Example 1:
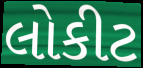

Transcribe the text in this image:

લોકીટ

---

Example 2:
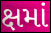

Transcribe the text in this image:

ક્ષમાં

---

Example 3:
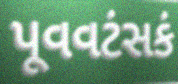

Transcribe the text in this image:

પૂવવટંસકં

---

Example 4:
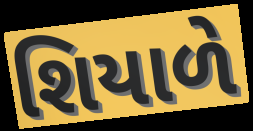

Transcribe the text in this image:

શિયાળે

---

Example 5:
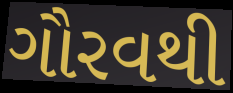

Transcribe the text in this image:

ગૌરવથી